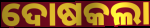
ଦୋଷକଲା